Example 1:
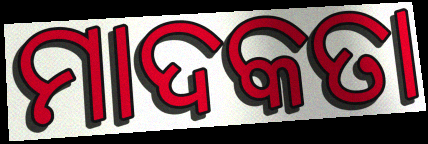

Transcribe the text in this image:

ମାଦକତା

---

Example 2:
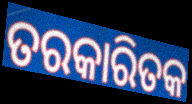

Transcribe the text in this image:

ତରକାରିତକ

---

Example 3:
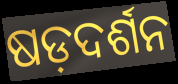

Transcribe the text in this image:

ଷଡ଼ଦର୍ଶନ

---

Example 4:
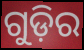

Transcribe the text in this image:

ଗୁଡ଼ିର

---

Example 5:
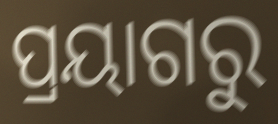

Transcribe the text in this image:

ପ୍ରୟାଗରୁ